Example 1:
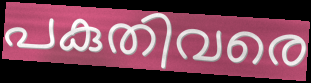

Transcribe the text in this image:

പകുതിവരെ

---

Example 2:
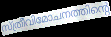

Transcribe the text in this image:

സ്ത്രീവിമോചനത്തിന്റെ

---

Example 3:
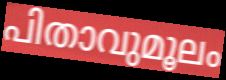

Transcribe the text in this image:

പിതാവുമൂലം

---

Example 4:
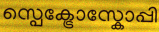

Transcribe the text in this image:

സ്പെക്ട്രോസ്കോപ്പി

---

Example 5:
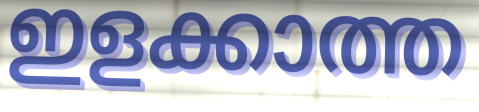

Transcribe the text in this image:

ഇളക്കാത്ത